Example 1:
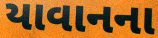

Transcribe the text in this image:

યાવાનના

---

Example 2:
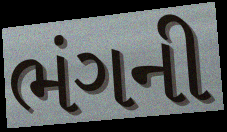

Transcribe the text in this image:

ભંગની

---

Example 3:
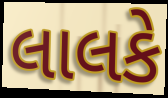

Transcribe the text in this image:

લાલકે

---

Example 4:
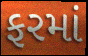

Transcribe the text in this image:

ફરમાં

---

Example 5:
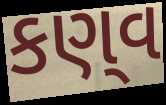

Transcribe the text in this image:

કણ્‌વ